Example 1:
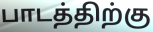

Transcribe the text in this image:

பாடத்திற்கு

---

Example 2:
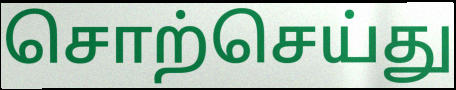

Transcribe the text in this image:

சொற்செய்து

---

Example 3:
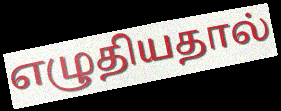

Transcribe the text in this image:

எழுதியதால்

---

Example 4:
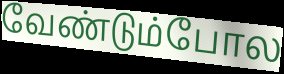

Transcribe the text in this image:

வேண்டும்போல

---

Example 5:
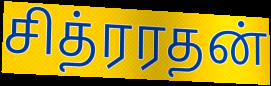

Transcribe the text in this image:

சித்ரரதன்